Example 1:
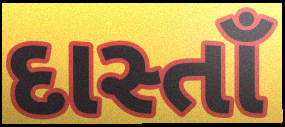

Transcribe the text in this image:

દાસ્તાઁ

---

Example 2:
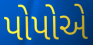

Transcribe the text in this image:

પોપોએ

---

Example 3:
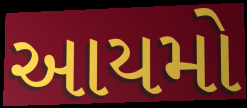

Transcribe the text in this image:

આયમો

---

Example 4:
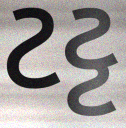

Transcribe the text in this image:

ટટ્ટ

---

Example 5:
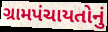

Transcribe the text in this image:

ગ્રામપંચાયતોનું